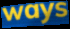
ways